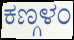
ಕಣ್ಗಳಂ